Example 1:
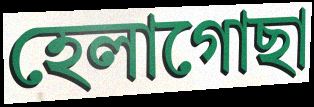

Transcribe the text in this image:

হেলাগোছা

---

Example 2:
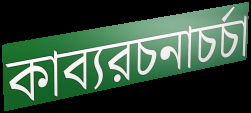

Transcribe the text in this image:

কাব্যরচনাচর্চা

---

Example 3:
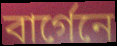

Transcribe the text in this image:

বার্গেনে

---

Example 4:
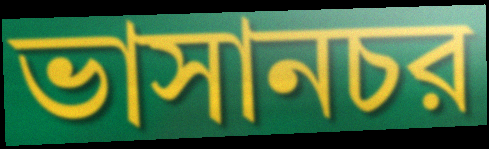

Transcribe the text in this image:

ভাসানচর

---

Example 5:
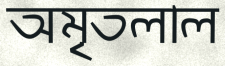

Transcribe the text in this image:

অমৃতলাল